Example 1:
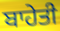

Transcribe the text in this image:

ਬਾਹੇਤੀ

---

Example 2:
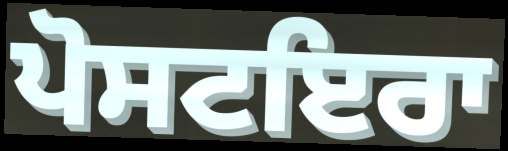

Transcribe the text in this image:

ਪੋਸਟਇਰਾ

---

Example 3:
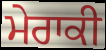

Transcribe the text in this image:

ਮੇਰਾਕੀ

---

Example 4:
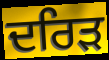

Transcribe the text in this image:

ਦਰਿੜ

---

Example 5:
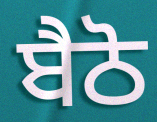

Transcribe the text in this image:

ਬੈਠੋ